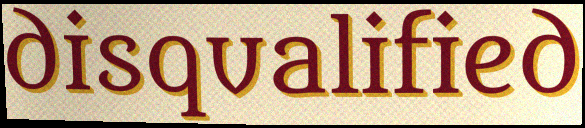
disqualified